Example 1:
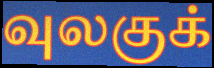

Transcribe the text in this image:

வுலகுக்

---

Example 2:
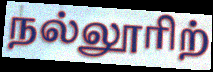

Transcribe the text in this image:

நல்லூரிற்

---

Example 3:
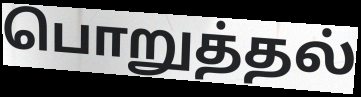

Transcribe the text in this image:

பொறுத்தல்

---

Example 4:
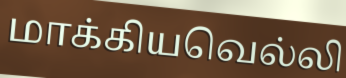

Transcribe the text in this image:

மாக்கியவெல்லி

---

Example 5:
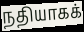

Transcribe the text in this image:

நதியாகக்